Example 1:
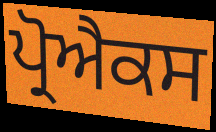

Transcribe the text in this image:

ਪ੍ਰੋਐਕਸ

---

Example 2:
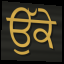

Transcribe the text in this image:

ਉੱਕੇ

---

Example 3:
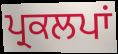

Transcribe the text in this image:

ਪ੍ਰਕਲਪਾਂ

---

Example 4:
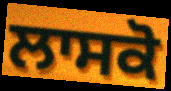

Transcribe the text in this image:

ਲਾਸਕੋ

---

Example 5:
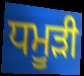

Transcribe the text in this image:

ਧਮੂੜੀ